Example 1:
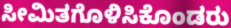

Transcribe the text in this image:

ಸೀಮಿತಗೊಳಿಸಿಕೊಂಡರು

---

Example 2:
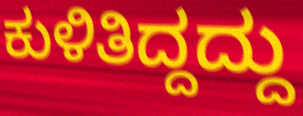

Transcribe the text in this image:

ಕುಳಿತಿದ್ದದ್ದು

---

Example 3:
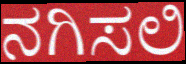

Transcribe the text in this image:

ನಗಿಸಲಿ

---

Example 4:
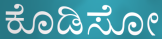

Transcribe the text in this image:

ಕೊಡಿಸೋ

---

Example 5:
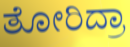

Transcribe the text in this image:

ತೋರಿದ್ರಾ